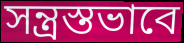
সন্ত্রস্তভাবে